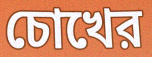
চোখের